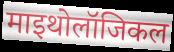
माइथोलॉजिकल